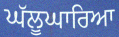
ਘੱਲੂਘਾਰਿਆ